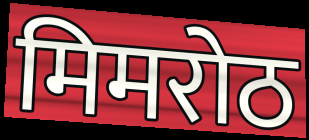
मिमरोठ